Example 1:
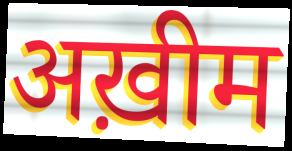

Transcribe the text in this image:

अख़ीम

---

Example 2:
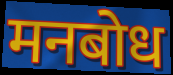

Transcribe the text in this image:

मनबोध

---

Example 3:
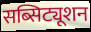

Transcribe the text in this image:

सब्सिट्यूशन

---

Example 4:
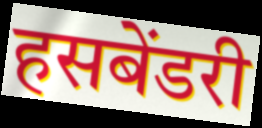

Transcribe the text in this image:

हसबेंडरी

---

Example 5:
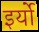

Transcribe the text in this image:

इर्यो